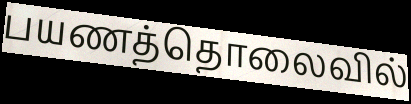
பயணத்தொலைவில்